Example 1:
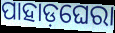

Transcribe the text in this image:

ପାହାଡ଼ଘେରା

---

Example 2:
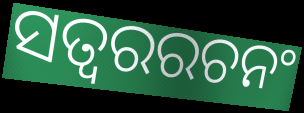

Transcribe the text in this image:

ସତ୍ୱରରଚନଂ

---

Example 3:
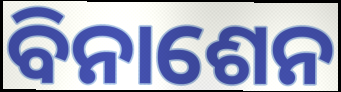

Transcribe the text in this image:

ବିନାଶେନ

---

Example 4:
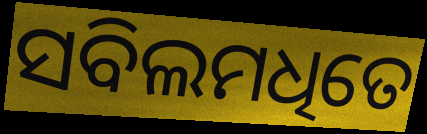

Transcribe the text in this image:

ସବିଲମଧିତେ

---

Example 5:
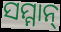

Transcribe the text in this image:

ସମ୍ମାନ୍